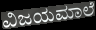
ವಿಜಯಮಾಲೆ